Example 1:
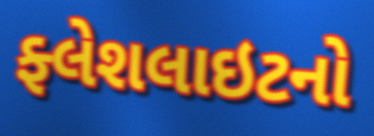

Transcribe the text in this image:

ફ્લેશલાઇટનો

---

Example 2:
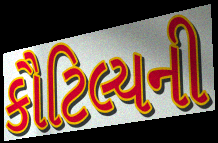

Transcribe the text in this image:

કૌટિલ્યની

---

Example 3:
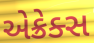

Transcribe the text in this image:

એક્રેક્સ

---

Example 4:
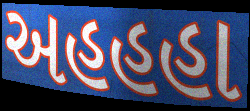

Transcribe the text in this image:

અહહહા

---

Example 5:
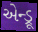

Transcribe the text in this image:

એન્ડ્રૂ